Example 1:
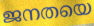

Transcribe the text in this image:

ജനതയെ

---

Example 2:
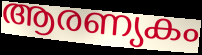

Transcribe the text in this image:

ആരണ്യകം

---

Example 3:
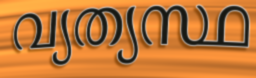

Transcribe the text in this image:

വ്യത്യസ്ഥ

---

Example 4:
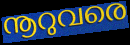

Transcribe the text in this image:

നൂറുവരെ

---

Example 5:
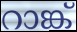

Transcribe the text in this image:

റാങ്ക്